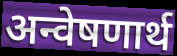
अन्वेषणार्थ